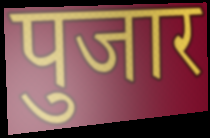
पुजार